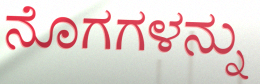
ನೊಗಗಳನ್ನು